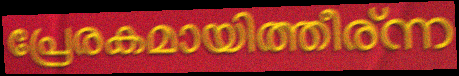
പ്രേരകമായിത്തീര്ന്ന